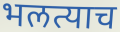
भलत्याच